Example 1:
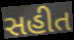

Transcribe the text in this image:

સહીત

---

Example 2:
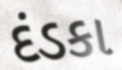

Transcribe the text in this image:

દંડકા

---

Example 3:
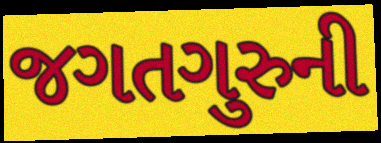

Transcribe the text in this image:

જગતગુરુની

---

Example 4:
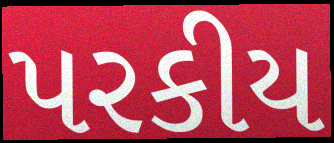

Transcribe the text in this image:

પરકીય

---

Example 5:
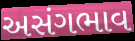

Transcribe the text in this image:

અસંગભાવ